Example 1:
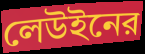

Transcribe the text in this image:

লেউইনের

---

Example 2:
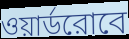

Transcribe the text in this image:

ওয়ার্ডরোবে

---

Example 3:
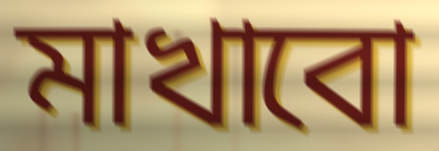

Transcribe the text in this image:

মাখাবো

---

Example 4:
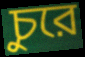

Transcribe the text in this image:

চুরে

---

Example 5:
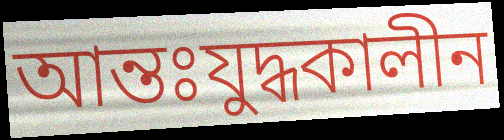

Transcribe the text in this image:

আন্তঃযুদ্ধকালীন